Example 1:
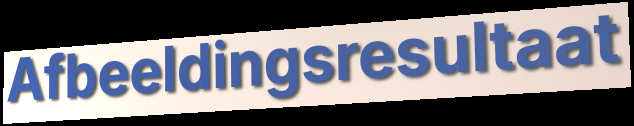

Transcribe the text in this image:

Afbeeldingsresultaat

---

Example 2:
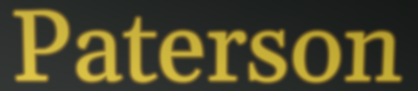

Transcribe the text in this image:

Paterson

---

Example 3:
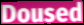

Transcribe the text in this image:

Doused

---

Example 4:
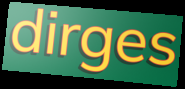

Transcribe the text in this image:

dirges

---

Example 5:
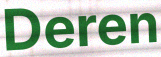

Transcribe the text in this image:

Deren